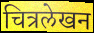
चित्रलेखन